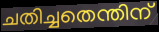
ചതിച്ചതെന്തിന്